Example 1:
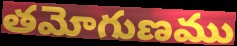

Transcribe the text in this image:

తమోగుణము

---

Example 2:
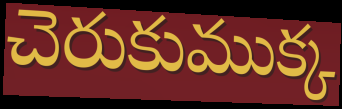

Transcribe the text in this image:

చెరుకుముక్క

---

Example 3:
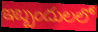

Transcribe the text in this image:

ఇబ్బందులలో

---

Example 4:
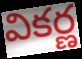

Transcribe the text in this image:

వికర్ణ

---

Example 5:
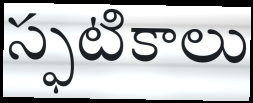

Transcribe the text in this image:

స్ఫటికాలు